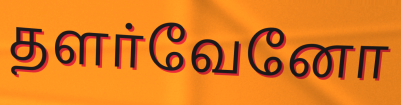
தளர்வேனோ